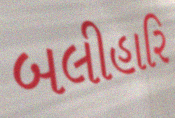
બલીહારિ